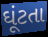
ઘૂંટતા